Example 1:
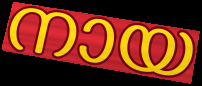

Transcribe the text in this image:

നായ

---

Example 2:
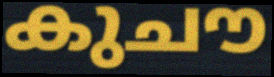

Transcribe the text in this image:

കുചൗ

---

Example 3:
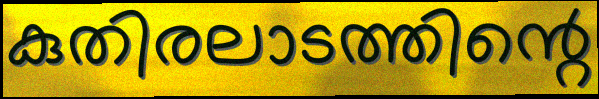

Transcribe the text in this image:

കുതിരലാടത്തിന്റെ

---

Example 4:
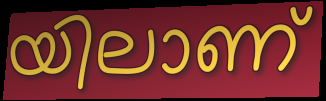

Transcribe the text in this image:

യിലാണ്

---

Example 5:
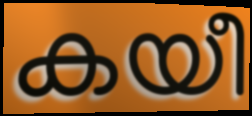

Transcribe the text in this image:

കയീ